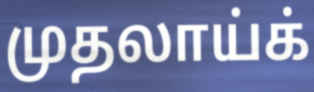
முதலாய்க்